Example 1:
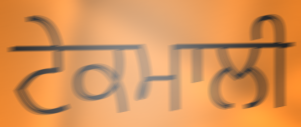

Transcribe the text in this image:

ਟੇਕਮਾਲੀ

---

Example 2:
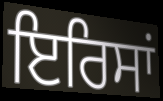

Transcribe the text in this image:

ਇਰਿਸਾਂ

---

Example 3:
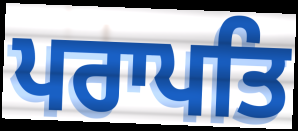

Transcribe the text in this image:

ਪਰਾਪਤਿ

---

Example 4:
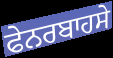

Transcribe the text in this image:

ਫੇਨਰਬਾਹਸੇ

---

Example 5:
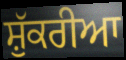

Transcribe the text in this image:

ਸ਼ੁੱਕਰੀਆ